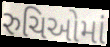
રુચિઓમાં